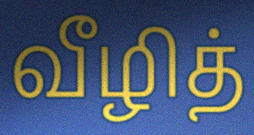
வீழித்